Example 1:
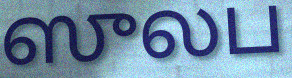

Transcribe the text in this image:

ஸுலப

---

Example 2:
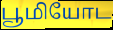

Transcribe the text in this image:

பூமியோட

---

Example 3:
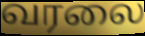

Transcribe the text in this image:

வரலை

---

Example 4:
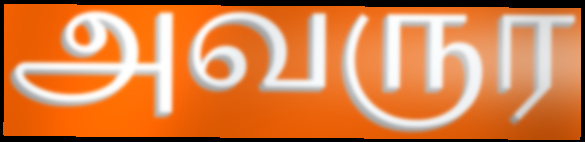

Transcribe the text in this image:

அவருர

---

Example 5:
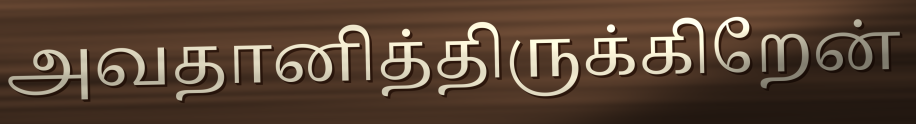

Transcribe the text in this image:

அவதானித்திருக்கிறேன்